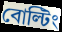
বোল্টিং